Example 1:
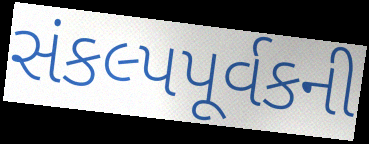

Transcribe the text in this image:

સંકલ્પપૂર્વકની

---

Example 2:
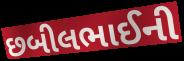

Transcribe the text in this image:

છબીલભાઈની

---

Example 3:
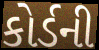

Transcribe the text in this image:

કોર્ડની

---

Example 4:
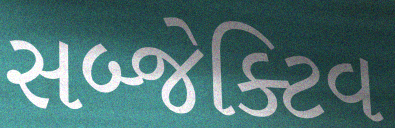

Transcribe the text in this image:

સબ્જેક્ટિવ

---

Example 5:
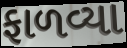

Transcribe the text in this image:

ફાળવ્યા